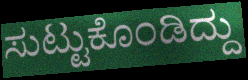
ಸುಟ್ಟುಕೊಂಡಿದ್ದು